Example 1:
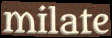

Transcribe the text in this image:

milate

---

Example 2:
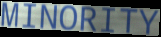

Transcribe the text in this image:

MINORITY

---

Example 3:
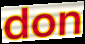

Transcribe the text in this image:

don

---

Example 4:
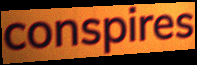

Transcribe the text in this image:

conspires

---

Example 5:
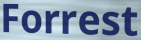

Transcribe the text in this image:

Forrest